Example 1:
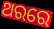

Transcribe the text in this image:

ଥରରେ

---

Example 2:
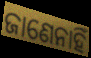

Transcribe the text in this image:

ଜାଣେନାହିଁ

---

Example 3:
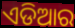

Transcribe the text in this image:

ଏଡିଆର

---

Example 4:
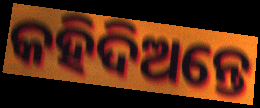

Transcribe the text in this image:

କହିଦିଅନ୍ତେ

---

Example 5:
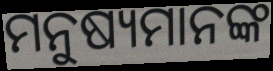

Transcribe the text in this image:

ମନୁଷ୍ୟମାନଙ୍କ